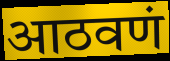
आठवणं